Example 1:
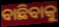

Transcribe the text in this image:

ବାଛିବାକୁ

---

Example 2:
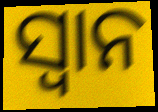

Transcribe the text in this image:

ସ୍ୱାନ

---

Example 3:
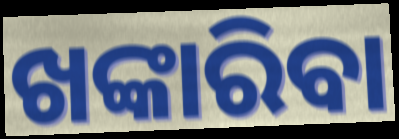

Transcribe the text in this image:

ଖଙ୍କାରିବା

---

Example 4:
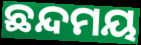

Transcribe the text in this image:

ଛନ୍ଦମୟ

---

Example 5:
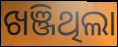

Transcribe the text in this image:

ଖଞ୍ଜିଥିଲା